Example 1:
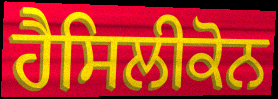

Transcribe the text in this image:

ਹੈਸਿਲੀਕੋਨ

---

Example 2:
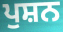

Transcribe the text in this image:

ਪੁਸ਼ਨ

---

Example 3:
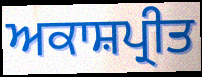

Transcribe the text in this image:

ਅਕਾਸ਼ਪ੍ਰੀਤ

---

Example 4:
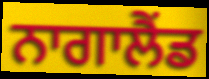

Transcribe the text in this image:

ਨਾਗਾਲੈਂਡ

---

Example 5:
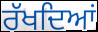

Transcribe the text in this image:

ਰੱਖਦਿਆਂ